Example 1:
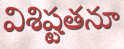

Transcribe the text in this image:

విశిష్టతనూ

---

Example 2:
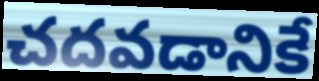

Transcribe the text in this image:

చదవడానికే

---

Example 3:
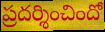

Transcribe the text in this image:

ప్రదర్శించిందో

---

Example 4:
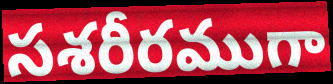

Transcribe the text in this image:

సశరీరముగా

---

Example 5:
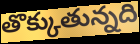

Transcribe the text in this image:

తొక్కుతున్నది